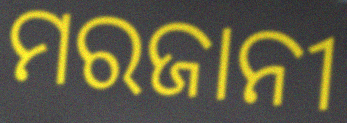
ମରଜାନୀ